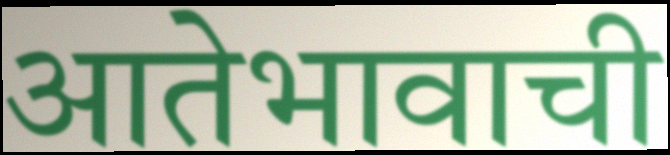
आतेभावाची